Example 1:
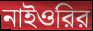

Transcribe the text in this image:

নাইওরির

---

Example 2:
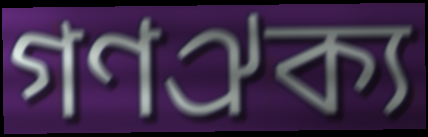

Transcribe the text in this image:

গণঐক্য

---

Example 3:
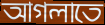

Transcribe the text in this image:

আগলাতে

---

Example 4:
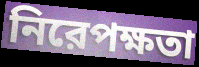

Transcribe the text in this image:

নিরেপক্ষতা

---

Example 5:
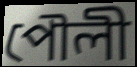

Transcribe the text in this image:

পৌলী